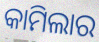
କାମିଲାର